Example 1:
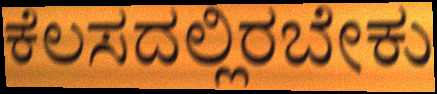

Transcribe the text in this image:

ಕೆಲಸದಲ್ಲಿರಬೇಕು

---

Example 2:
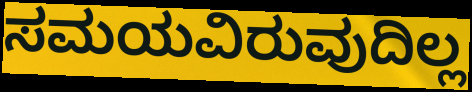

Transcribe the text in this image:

ಸಮಯವಿರುವುದಿಲ್ಲ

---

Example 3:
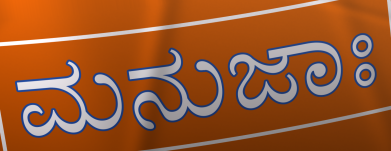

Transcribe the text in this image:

ಮನುಜಾಃ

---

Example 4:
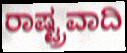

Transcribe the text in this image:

ರಾಷ್ಟ್ರವಾದಿ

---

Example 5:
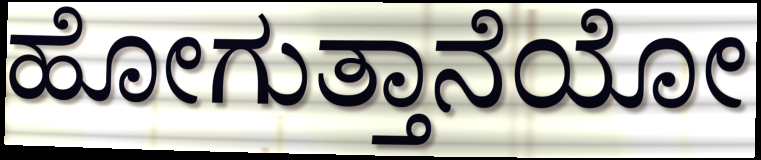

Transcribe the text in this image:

ಹೋಗುತ್ತಾನೆಯೋ